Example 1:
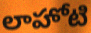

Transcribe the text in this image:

లాహోటి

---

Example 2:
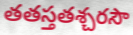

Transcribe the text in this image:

తతస్తతశ్చరసౌ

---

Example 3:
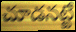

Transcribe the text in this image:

చూడనట్టే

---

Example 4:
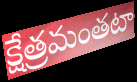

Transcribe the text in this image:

క్షేత్రమంతటా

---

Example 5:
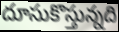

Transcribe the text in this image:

దూసుకొస్తున్నది